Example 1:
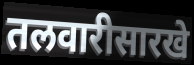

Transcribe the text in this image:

तलवारीसारखे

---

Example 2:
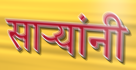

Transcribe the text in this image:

साऱ्यांनी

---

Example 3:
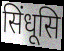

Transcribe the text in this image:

सिंधूसि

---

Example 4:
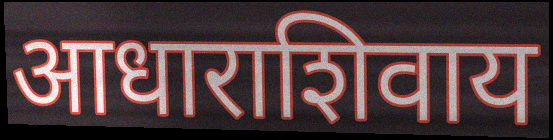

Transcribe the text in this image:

आधाराशिवाय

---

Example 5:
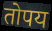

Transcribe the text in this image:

तोपय